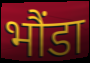
भौंडा